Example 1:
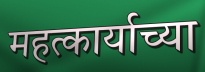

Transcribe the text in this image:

महत्कार्याच्या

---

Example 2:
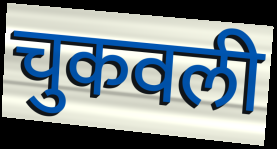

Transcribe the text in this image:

चुकवली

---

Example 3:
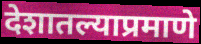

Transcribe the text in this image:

देशातल्याप्रमाणे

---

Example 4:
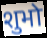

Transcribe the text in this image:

शुभो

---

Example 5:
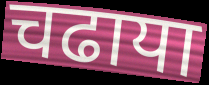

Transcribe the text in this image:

चढाया